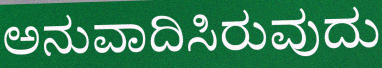
ಅನುವಾದಿಸಿರುವುದು